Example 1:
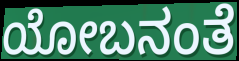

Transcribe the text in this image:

ಯೋಬನಂತೆ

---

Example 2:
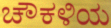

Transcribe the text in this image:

ಚೌಕಳಿಯ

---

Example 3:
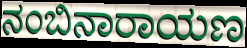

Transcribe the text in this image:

ನಂಬಿನಾರಾಯಣ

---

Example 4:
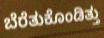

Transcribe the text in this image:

ಬೆರೆತುಕೊಂಡಿತ್ತು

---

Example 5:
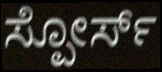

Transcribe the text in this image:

ಸ್ಪೋರ್ಸ್